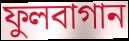
ফুলবাগান